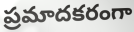
ప్రమాదకరంగా